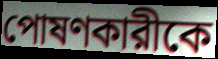
পোষণকারীকে